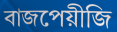
বাজপেয়ীজি